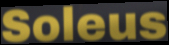
Soleus